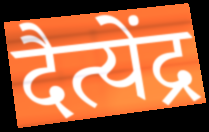
दैत्येंद्र